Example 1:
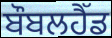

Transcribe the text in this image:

ਬੌਬਲਹੈੱਡ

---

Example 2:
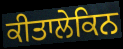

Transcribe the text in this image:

ਕੀਤਾਲੇਕਿਨ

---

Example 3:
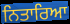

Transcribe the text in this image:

ਨਿਤਾਰਿਆ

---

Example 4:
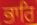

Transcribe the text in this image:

ਭਾਰਿ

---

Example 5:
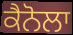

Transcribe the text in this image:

ਕੈਨੋਲਾ